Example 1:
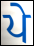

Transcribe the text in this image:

ਪੇ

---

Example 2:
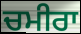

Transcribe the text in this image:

ਚਮੀਰਾ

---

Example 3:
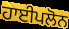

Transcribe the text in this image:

ਹਾਈਪਲੋਨ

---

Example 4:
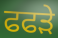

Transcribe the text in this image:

ਫਫੜੇ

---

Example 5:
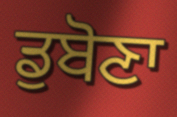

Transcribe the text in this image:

ਡੁਬੋਣਾ